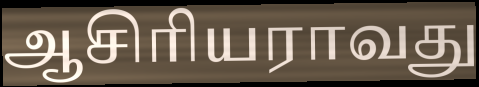
ஆசிரியராவது